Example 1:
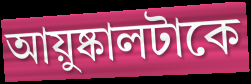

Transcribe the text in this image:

আয়ুষ্কালটাকে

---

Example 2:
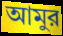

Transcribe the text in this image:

আমুর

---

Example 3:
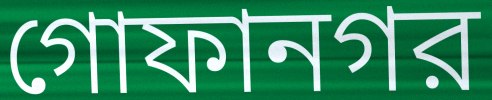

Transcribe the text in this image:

গোফানগর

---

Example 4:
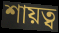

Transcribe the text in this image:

শায়ত্ব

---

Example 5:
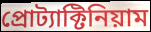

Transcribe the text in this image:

প্রোট্যাক্টিনিয়াম